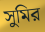
সুমির